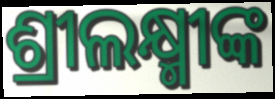
ଶ୍ରୀଲକ୍ଷ୍ମୀଙ୍କ